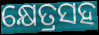
କ୍ଷେତ୍ରସହ